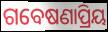
ଗବେଷଣାପ୍ରିୟ